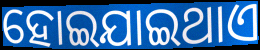
ହୋଇଯାଇଥାଏ